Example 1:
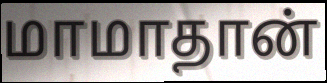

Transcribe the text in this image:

மாமாதான்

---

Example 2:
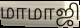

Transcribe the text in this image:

மாமாஜி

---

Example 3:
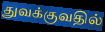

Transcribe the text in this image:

துவக்குவதில்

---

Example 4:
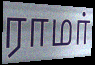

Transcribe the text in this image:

ராமர்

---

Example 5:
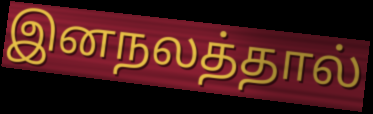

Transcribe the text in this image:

இனநலத்தால்